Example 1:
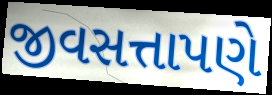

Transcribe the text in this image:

જીવસત્તાપણે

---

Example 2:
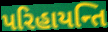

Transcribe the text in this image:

પરિહાયન્તિ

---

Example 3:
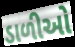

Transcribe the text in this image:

ડાળીઓ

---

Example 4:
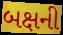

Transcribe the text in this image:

બક્ષની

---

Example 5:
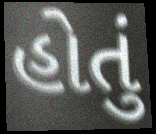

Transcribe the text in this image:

હોતું